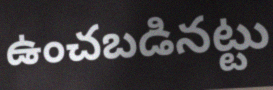
ఉంచబడినట్టు